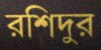
রশিদুর